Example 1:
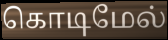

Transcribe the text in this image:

கொடிமேல்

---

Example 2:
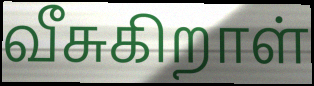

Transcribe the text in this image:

வீசுகிறாள்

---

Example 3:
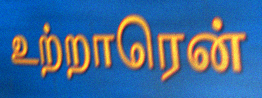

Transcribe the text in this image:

உற்றாரென்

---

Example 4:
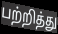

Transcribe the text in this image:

பற்றித்து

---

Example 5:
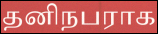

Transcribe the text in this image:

தனிநபராக